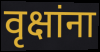
वृक्षांना